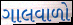
ગાલવાળો